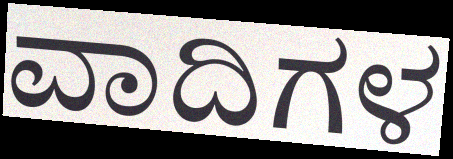
ವಾದಿಗಳ